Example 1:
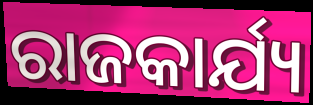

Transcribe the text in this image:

ରାଜକାର୍ଯ୍ୟ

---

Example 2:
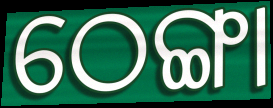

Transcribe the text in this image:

ଠେଙ୍ଗା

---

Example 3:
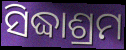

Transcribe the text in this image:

ସିଦ୍ଧାଶ୍ରମ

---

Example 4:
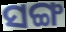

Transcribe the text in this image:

ସଙ୍ଗ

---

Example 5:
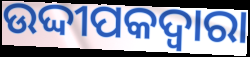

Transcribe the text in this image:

ଉଦ୍ଦୀପକଦ୍ବାରା